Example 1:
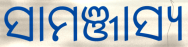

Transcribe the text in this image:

ସାମଞ୍ଜାସ୍ୟ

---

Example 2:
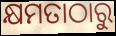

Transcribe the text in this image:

କ୍ଷମତାଠାରୁ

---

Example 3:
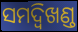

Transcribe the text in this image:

ସମଦ୍ବିଖଣ୍ଡ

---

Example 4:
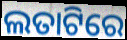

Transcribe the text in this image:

ଲତାଟିରେ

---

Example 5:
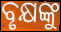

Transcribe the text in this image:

ବୃକ୍ଷଙ୍କୁ